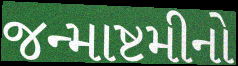
જન્માષ્ટમીનો